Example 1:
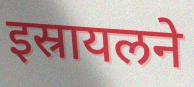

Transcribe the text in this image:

इस्रायलने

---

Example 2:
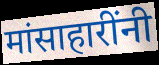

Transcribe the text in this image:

मांसाहारींनी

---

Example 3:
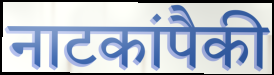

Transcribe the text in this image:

नाटकांपैकी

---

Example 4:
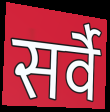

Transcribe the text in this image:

सर्वै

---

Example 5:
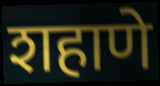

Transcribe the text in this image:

शहाणे